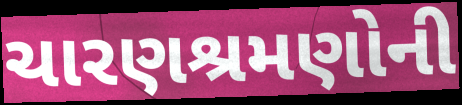
ચારણશ્રમણોની